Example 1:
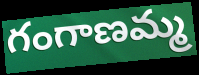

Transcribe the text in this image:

గంగాణమ్మ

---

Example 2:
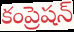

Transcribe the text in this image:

కంప్రెషన్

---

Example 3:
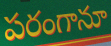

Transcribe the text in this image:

పరంగానూ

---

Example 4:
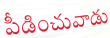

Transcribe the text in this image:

పీడించువాడు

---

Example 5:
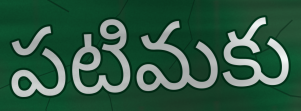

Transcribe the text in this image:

పటిమకు